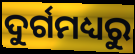
ଦୁର୍ଗମଧ୍ୟରୁ